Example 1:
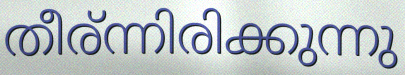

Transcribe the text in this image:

തീര്ന്നിരിക്കുന്നു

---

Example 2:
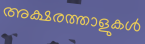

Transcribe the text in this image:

അക്ഷരത്താളുകൾ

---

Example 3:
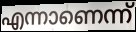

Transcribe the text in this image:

എന്നാണെന്ന്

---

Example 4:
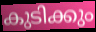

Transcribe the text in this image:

കുടിക്കും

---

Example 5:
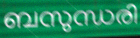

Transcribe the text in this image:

ബസുന്ധരി